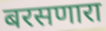
बरसणारा